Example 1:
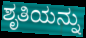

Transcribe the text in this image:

ಶೃತಿಯನ್ನು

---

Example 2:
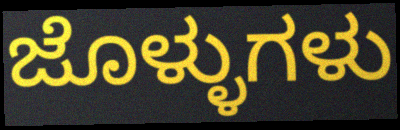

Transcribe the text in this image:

ಜೊಳ್ಳುಗಳು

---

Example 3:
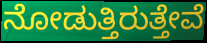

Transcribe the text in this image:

ನೋಡುತ್ತಿರುತ್ತೇವೆ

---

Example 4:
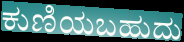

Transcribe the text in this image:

ಕುಣಿಯಬಹುದು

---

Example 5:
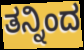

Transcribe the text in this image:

ತನ್ನಿಂದ